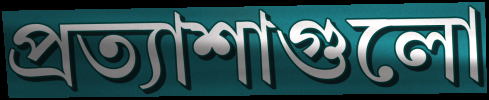
প্রত্যাশাগুলো